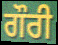
ਗੌਰੀ